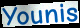
Younis